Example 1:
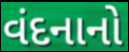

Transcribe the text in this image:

વંદનાનો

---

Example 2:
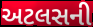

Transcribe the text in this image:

અટલસની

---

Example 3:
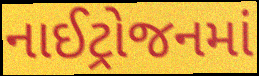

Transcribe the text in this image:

નાઈટ્રોજનમાં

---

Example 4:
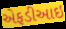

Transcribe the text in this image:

એફડીઆઇ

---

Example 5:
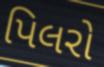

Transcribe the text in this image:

પિલરો